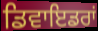
ਡਿਵਾਇਡਰਾਂ